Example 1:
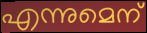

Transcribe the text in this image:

എന്നുമെന്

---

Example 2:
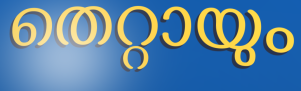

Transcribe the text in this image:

തെറ്റായും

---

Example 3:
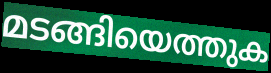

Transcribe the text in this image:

മടങ്ങിയെത്തുക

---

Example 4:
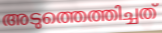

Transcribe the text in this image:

അടുത്തെത്തിച്ചത്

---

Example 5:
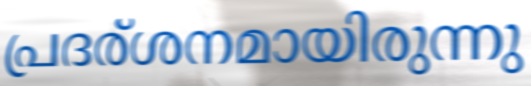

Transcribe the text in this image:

പ്രദര്ശനമായിരുന്നു